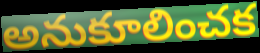
అనుకూలించక